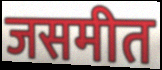
जसमीत